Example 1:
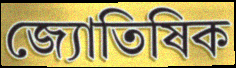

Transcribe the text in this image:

জ্যোতিষিক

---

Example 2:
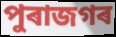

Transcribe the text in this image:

পুৰাজগৰ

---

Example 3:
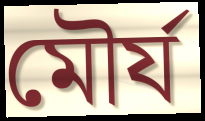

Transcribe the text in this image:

মৌৰ্য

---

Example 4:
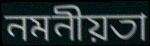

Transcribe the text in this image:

নমনীয়তা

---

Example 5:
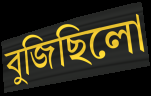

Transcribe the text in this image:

বুজিছিলো